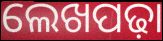
ଲେଖପଢ଼ା